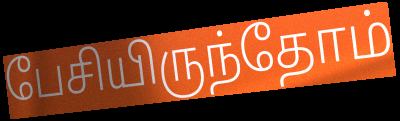
பேசியிருந்தோம்